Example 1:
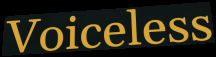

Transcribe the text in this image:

Voiceless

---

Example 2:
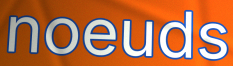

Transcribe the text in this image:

noeuds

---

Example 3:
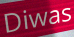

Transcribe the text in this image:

Diwas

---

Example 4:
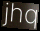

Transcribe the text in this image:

jhq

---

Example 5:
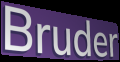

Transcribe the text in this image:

Bruder